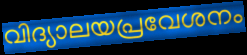
വിദ്യാലയപ്രവേശനം